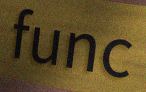
func